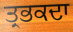
ਤ੍ਰਭਕਦਾ